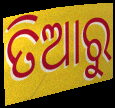
ତିଆରୁ